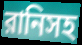
রানিসহ